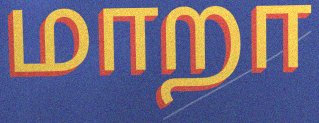
மாறா